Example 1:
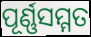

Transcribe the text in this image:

ପୂର୍ଣ୍ଣସମ୍ମତ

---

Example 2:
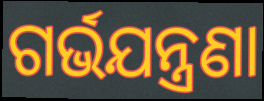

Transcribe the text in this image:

ଗର୍ଭଯନ୍ତ୍ରଣା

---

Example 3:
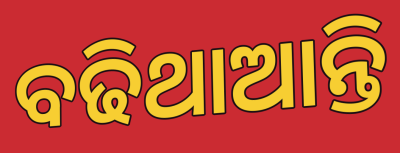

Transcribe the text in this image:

ବଢିଥାଆନ୍ତି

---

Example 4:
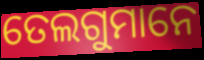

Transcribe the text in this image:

ତେଲଗୁମାନେ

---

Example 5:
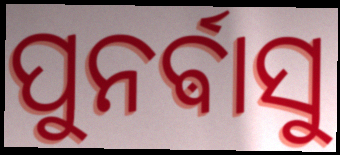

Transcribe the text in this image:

ପୁନର୍ଵାସୁ